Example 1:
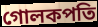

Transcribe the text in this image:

গোলকপতি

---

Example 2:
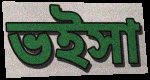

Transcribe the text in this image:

ভইসা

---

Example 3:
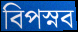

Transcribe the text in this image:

বিপস্নব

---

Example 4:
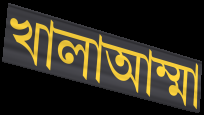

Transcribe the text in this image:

খালাআম্মা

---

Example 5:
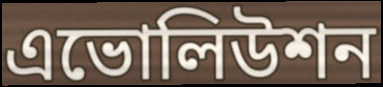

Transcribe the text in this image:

এভোলিউশন